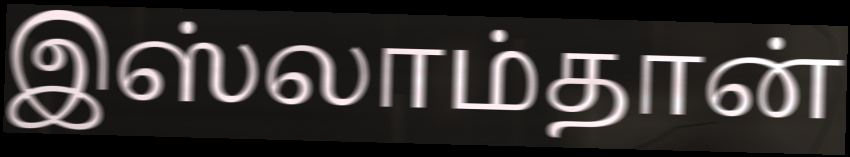
இஸ்லாம்தான்